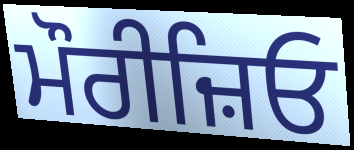
ਮੌਰੀਜ਼ਿਓ